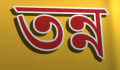
তন্ন